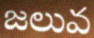
జలువ